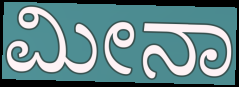
ಮೀನಾ